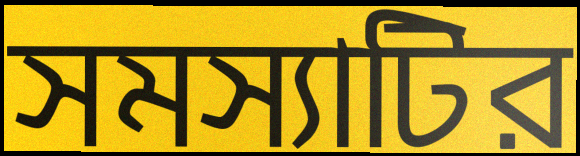
সমস্যাটির